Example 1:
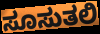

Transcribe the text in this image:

ಸೂಸುತಲಿ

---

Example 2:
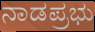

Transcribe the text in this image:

ನಾಡಪ್ರಭು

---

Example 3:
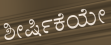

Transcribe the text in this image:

ಶೀರ್ಷಿಕೆಯೇ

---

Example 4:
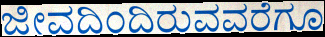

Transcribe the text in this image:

ಜೀವದಿಂದಿರುವವರೆಗೂ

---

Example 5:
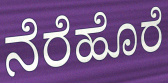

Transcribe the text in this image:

ನೆರೆಹೊರೆ